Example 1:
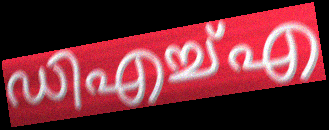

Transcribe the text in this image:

ഡിഎച്ച്എ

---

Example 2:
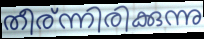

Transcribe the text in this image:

തീര്ന്നിരിക്കുന്നു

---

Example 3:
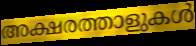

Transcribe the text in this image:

അക്ഷരത്താളുകൾ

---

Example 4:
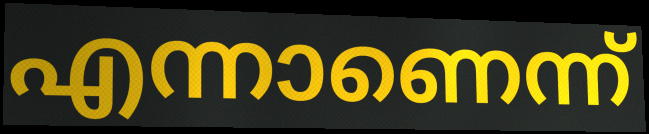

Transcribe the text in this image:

എന്നാണെന്ന്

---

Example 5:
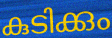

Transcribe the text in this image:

കുടിക്കും